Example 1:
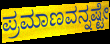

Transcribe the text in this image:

ಪ್ರಮಾಣವನ್ನಷ್ಟೇ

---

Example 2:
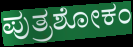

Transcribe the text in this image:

ಪುತ್ರಶೋಕಂ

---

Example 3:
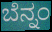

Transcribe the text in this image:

ಬೆನ್ನಂ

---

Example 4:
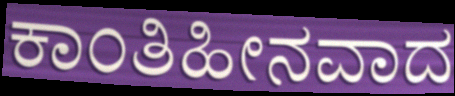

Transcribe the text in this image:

ಕಾಂತಿಹೀನವಾದ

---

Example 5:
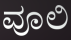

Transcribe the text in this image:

ವೂಲಿ